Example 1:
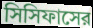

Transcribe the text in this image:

সিসিফাসের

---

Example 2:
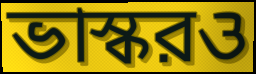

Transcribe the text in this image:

ভাস্করও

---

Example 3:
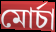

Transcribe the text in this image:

মোর্চা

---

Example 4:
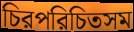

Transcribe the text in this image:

চিরপরিচিতসম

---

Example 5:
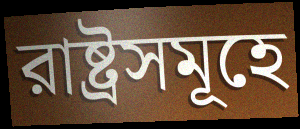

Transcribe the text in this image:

রাষ্ট্রসমূহে